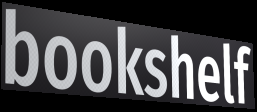
bookshelf